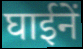
घाईनें